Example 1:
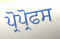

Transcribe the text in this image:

ਪ੍ਰੋਪ੍ਰੋਫਸ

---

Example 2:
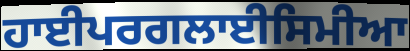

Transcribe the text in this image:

ਹਾਈਪਰਗਲਾਈਸਿਮੀਆ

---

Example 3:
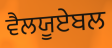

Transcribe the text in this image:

ਵੈਲਯੂਏਬਲ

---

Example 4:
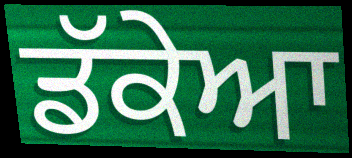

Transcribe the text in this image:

ਡੱਕੇਆ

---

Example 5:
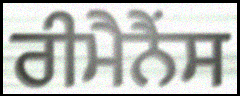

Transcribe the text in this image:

ਰੀਮੈਨੈਂਸ